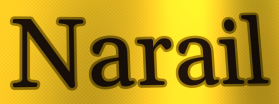
Narail